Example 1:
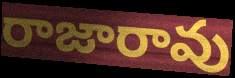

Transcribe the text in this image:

రాజారావు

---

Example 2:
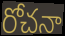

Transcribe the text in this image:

రోచనా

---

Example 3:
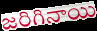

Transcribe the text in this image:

జరిగినాయి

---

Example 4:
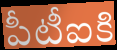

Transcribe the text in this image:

పీటీఐకి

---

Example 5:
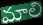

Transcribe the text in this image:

మాలి